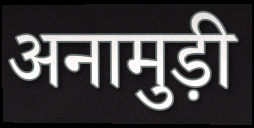
अनामुड़ी